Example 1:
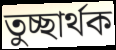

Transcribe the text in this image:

তুচ্ছার্থক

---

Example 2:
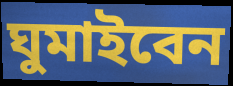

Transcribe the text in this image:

ঘুমাইবেন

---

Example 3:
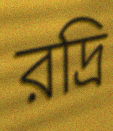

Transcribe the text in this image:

রদ্রি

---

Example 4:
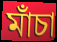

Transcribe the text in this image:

মাঁচা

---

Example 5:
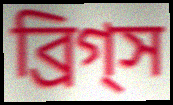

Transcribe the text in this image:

ব্রিগ্‌স